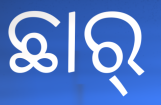
ଛାର୍